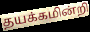
தயக்கமின்றி